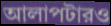
আলাপটারও